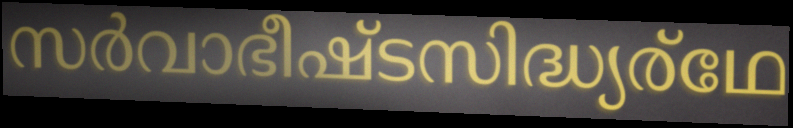
സർവാഭീഷ്ടസിദ്ധ്യര്ഥേ